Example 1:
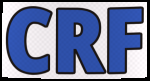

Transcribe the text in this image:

CRF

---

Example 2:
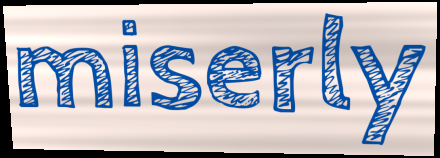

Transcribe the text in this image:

miserly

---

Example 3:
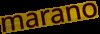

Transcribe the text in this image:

marano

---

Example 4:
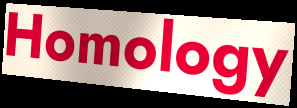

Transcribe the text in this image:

Homology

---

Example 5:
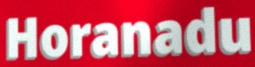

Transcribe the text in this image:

Horanadu